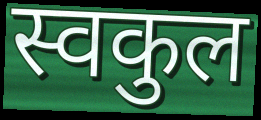
स्वकुल